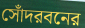
সোঁদরবনের